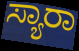
ಸ್ಯಾರಾ